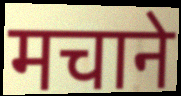
मचाने